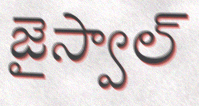
జైస్వాల్